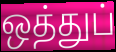
ஒத்துப்